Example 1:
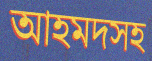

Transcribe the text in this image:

আহমদসহ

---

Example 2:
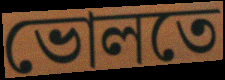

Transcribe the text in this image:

ভোলতে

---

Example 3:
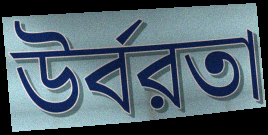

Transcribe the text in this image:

উর্বরতা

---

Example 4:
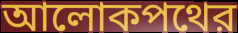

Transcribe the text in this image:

আলোকপথের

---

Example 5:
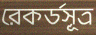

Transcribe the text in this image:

রেকর্ডসূত্র